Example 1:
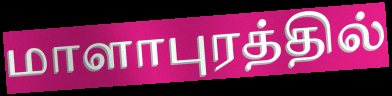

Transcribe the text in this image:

மாளாபுரத்தில்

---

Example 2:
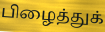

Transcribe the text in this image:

பிழைத்துக்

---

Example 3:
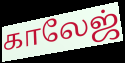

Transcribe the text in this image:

காலேஜ்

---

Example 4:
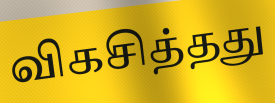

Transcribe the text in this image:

விகசித்தது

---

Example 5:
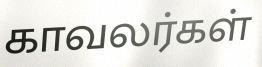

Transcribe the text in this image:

காவலர்கள்